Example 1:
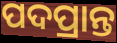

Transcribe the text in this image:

ପଦପ୍ରାନ୍ତ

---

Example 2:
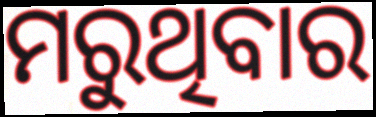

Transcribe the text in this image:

ମରୁଥିବାର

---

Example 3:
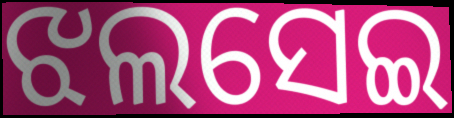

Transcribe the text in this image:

ଝଲସେଇ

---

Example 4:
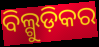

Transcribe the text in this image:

ବିଲ୍ଗୁଡ଼ିକର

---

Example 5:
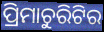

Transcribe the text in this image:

ପ୍ରିମାଚୁରିଟିର